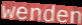
wenden